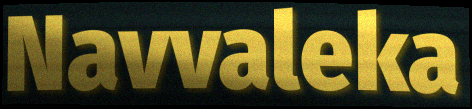
Navvaleka